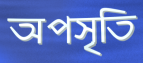
অপসৃতি